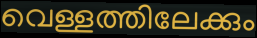
വെള്ളത്തിലേക്കും